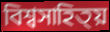
বিশ্বসাহিত্য়